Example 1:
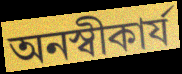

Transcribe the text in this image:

অনস্বীকার্য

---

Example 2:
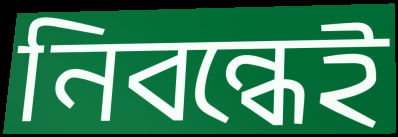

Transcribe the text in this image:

নিবন্ধেই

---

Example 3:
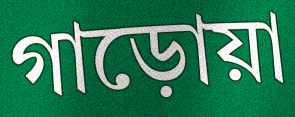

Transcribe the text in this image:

গাড়োয়া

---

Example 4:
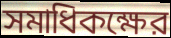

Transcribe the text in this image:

সমাধিকক্ষের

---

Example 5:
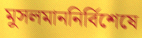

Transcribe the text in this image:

মুসলমাননির্বিশেষে